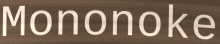
Mononoke